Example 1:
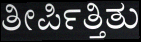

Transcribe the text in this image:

ತೀರ್ಪಿತ್ತಿತು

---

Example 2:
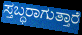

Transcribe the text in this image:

ಸ್ತಬ್ಧರಾಗುತ್ತಾರೆ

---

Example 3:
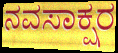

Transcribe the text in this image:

ನವಸಾಕ್ಷರ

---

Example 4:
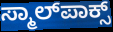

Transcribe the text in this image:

ಸ್ಮಾಲ್‌ಪಾಕ್ಸ್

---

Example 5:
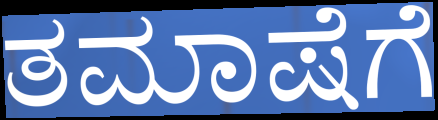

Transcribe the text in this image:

ತಮಾಷೆಗೆ